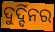
ଦୁର୍ଦ୍ଦିନର